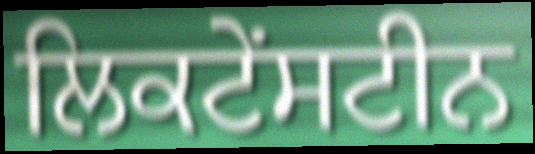
ਲਿਕਟੇਂਸਟੀਨ